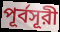
পূর্বসূরী